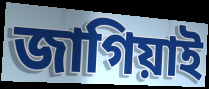
জাগিয়াই